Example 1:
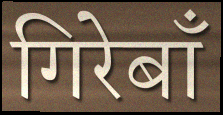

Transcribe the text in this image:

गिरेबाँ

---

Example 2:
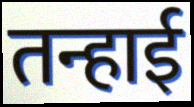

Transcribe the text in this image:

तन्हाई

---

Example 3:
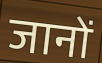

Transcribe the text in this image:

जानों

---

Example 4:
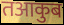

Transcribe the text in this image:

तआकुब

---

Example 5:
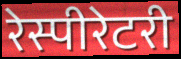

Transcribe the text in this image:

रेस्पीरेटरी